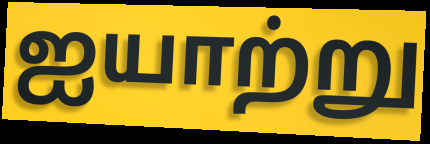
ஐயாற்று